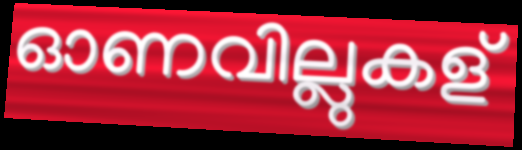
ഓണവില്ലുകള്